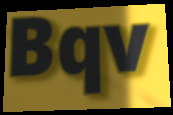
Bqv